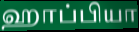
ஹாப்பியா